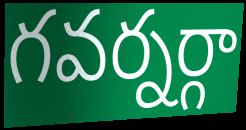
గవర్నర్గా